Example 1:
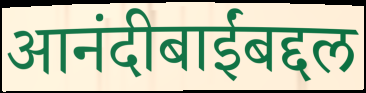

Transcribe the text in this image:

आनंदीबाईंबद्दल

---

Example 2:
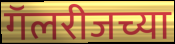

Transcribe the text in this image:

गॅलरीजच्या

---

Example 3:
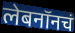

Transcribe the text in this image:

लेबनॉनचं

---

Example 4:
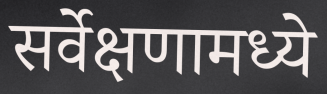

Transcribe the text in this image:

सर्वेक्षणामध्ये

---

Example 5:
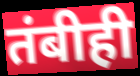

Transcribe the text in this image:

तंबीही